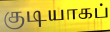
குடியாகப்